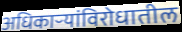
अधिकाऱ्यांविरोधातील